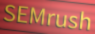
SEMrush